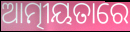
ଆତ୍ମୀୟତାରେ